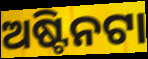
ଅଷ୍ଟିନଟା